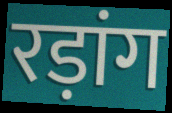
रड़ांग